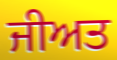
ਜੀਅਤ